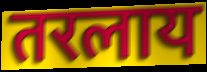
तरलाय